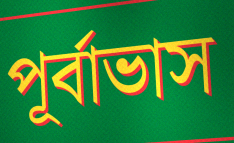
পূৰ্বাভাস